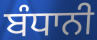
ਬੰਧਾਨੀ